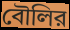
বৌলির